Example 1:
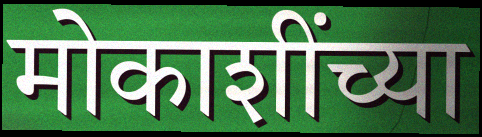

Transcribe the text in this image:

मोकाशींच्या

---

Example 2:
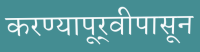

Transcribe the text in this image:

करण्यापूर्वीपासून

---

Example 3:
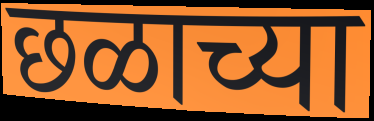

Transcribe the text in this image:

छळाच्या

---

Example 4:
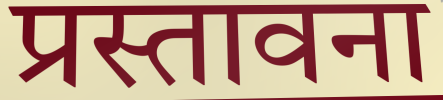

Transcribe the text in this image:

प्रस्तावना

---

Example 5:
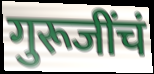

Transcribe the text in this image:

गुरूजींचं